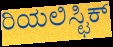
ರಿಯಲಿಸ್ಟಿಕ್